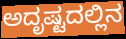
ಅದೃಷ್ಟದಲ್ಲಿನ